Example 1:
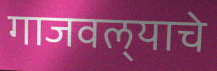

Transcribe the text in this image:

गाजवल्याचे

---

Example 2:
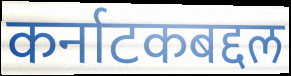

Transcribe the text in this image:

कर्नाटकबद्दल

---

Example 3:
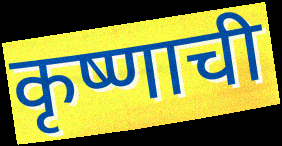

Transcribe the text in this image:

कृष्णाची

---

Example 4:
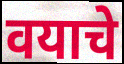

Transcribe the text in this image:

वयाचे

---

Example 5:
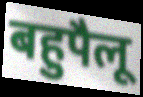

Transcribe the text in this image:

बहुपैलू